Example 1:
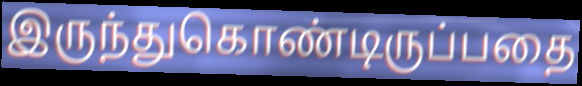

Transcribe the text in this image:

இருந்துகொண்டிருப்பதை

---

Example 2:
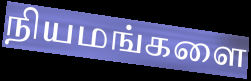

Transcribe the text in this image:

நியமங்களை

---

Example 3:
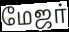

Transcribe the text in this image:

மேஜர்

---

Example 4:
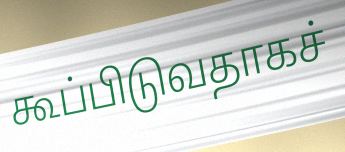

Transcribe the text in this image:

கூப்பிடுவதாகச்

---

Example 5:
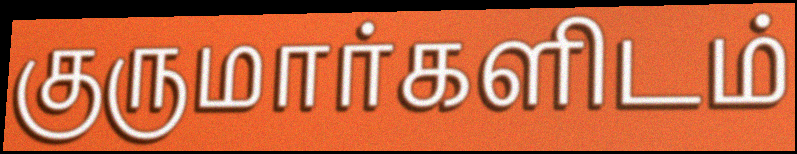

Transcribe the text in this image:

குருமார்களிடம்